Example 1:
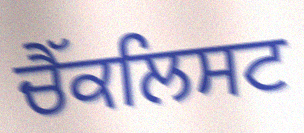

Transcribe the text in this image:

ਚੈੱਕਲਿਸਟ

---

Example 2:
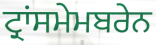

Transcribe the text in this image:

ਟ੍ਰਾਂਸਮੇਮਬਰੇਨ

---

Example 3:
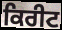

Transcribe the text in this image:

ਕਿਰੀਟ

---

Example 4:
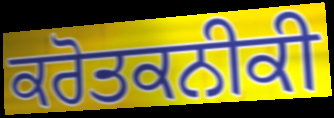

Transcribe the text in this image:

ਕਰੋਤਕਨੀਕੀ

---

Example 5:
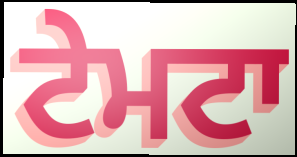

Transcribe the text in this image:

ਟੇਮਟਾ